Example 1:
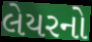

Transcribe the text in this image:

લેયરનો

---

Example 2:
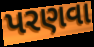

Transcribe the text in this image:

પરણવા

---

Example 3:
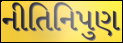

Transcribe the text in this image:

નીતિનિપુણ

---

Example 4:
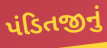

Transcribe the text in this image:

પંડિતજીનું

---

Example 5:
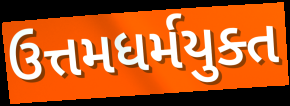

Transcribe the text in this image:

ઉત્તમધર્મયુક્ત